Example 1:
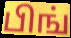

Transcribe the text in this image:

பிங்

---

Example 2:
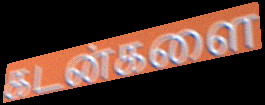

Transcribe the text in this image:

கடன்களை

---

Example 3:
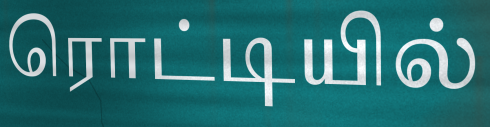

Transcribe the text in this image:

ரொட்டியில்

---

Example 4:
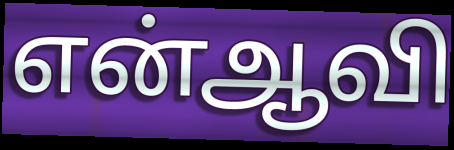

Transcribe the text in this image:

என்ஆவி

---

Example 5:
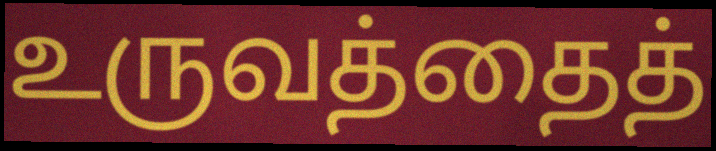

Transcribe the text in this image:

உருவத்தைத்